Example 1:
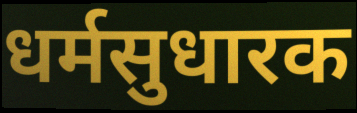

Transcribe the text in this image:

धर्मसुधारक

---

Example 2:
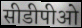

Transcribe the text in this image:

सीडीपीओ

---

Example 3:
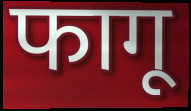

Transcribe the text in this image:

फागू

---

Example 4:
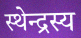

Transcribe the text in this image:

स्थेन्द्रस्य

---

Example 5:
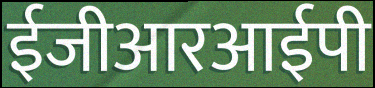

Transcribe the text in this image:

ईजीआरआईपी